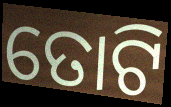
ତୋଟି